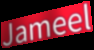
Jameel